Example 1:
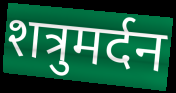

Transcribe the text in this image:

शत्रुमर्दन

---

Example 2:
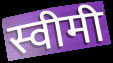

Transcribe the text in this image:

स्वीमी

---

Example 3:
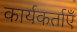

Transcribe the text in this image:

कार्यकर्ताएँ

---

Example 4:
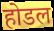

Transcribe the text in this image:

होडल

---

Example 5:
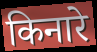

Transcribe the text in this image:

किनारे